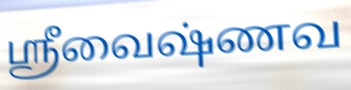
ஸ்ரீவைஷ்ணவ